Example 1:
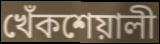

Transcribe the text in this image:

খেঁকশেয়ালী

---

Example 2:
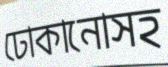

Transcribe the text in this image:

ঢোকানোসহ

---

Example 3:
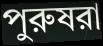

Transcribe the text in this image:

পুরুষরা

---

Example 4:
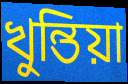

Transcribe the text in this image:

খুন্তিয়া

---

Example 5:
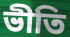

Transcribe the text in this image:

ভীতি